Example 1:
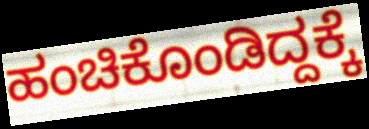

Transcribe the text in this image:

ಹಂಚಿಕೊಂಡಿದ್ದಕ್ಕೆ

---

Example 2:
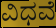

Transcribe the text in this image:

ವಿಧವೆ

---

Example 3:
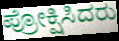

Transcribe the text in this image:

ಪ್ರೋಕ್ಷಿಸಿದರು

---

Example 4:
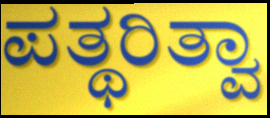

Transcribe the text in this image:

ಪತ್ಥರಿತ್ವಾ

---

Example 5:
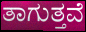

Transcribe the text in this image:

ತಾಗುತ್ತವೆ